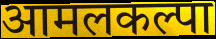
आमलकल्पा